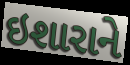
ઇશારાને